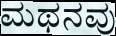
ಮಥನವು